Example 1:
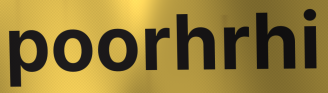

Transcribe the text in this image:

poorhrhi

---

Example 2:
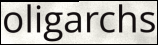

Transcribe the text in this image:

oligarchs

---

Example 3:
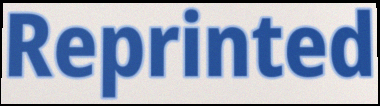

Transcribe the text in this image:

Reprinted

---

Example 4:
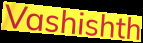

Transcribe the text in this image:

Vashishth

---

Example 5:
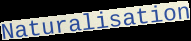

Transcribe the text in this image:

Naturalisation